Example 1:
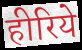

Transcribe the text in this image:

हीरिये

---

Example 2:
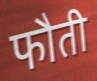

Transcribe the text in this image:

फौती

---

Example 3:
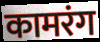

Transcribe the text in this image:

कामरंग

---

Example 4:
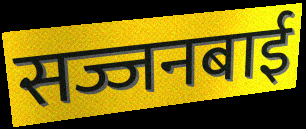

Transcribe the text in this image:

सज्जनबाई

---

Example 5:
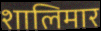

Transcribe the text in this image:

शालिमार